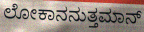
ಲೋಕಾನನುತ್ತಮಾನ್